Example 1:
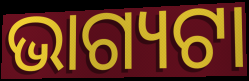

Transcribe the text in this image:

ଭାଗ୍ୟଟା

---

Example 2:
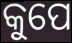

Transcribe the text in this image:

କୁପେ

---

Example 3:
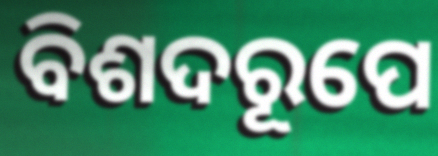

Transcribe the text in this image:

ବିଶଦରୂପେ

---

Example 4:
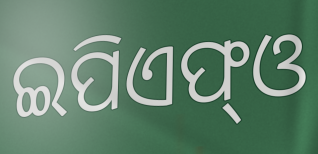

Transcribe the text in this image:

ଇପିଏଫ୍ଓ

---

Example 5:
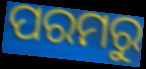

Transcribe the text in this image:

ପରମରୁ